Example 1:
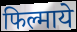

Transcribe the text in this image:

फिल्माये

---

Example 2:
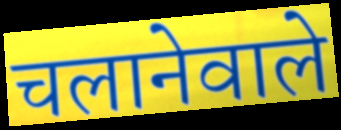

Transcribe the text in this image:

चलानेवाले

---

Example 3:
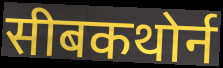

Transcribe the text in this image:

सीबकथोर्न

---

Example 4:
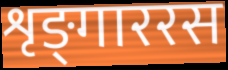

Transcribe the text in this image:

शृङ्गाररस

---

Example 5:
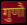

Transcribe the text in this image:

गुणौ